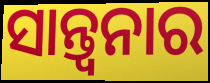
ସାନ୍ତ୍ୱନାର